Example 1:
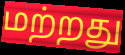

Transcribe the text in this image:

மற்றது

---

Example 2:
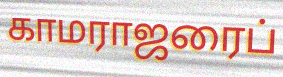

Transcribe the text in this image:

காமராஜரைப்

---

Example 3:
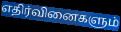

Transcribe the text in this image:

எதிர்வினைகளும்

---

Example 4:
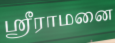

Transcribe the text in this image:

ஸ்ரீராமனை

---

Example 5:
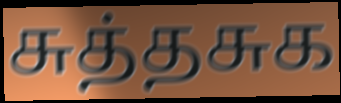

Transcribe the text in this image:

சுத்தசுக